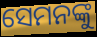
ସେମନଙ୍କୁ